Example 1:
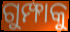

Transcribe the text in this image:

ଗୁମ୍ଫାକୁ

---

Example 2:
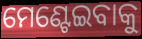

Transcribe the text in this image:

ମେଣ୍ଟେଇବାକୁ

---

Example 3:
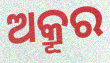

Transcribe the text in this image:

ଅକ୍ରୂର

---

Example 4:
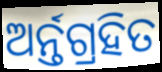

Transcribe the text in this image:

ଅର୍ନ୍ତଗ୍ରହିତ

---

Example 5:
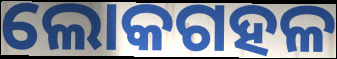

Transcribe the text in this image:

ଲୋକଗହଳ